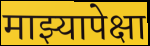
माझ्यापेक्षा